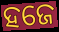
ହଜେ